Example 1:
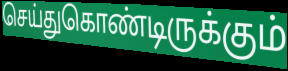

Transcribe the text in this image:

செய்துகொண்டிருக்கும்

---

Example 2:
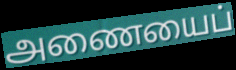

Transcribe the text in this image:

அணையைப்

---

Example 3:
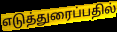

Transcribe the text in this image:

எடுத்துரைப்பதில்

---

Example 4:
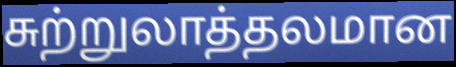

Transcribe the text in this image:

சுற்றுலாத்தலமான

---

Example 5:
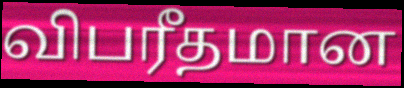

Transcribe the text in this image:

விபரீதமான